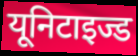
यूनिटाइज्ड